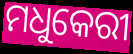
ମଧୁକେରୀ